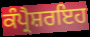
ਕੰਪ੍ਰੈਸ਼ਰਇਹ